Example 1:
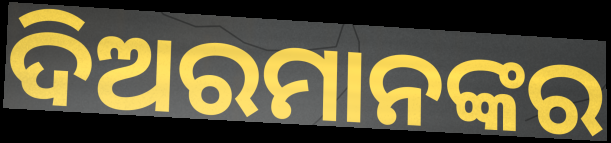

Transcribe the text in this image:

ଦିଅରମାନଙ୍କର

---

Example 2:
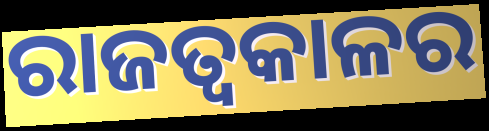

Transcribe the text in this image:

ରାଜତ୍ୱକାଳର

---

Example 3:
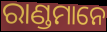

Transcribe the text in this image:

ରାଣ୍ଡମାନେ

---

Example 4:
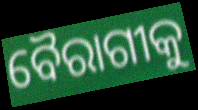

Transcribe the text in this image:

ବୈରାଗୀକୁ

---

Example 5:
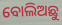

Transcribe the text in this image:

ବୋଲିଅଛୁ